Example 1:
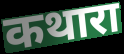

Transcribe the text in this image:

कथारा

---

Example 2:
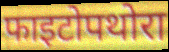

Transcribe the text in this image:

फाइटोपथोरा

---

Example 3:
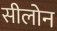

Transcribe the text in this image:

सीलोन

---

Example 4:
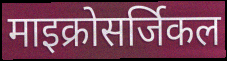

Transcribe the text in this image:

माइक्रोसर्जिकल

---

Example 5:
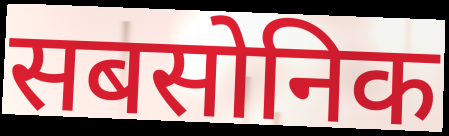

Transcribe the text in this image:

सबसोनिक